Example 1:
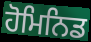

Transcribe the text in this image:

ਹੋਮਿਨਿਡ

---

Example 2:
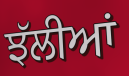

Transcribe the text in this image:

ਝੱਲੀਆਂ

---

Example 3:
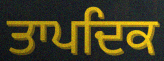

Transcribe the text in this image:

ਤਾਪਦਿਕ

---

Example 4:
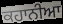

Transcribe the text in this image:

ਕਹਾਨੀਆ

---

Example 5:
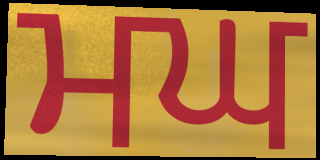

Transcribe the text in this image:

ਮਘ